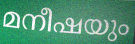
മനീഷയും